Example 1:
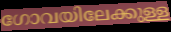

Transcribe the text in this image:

ഗോവയിലേക്കുള്ള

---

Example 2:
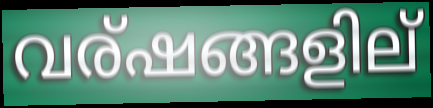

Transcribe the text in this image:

വര്ഷങ്ങളില്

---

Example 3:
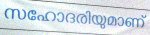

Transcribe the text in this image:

സഹോദരിയുമാണ്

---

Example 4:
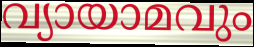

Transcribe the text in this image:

വ്യായാമവും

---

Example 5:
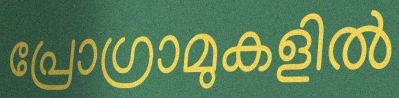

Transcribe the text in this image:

പ്രോഗ്രാമുകളിൽ